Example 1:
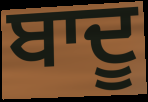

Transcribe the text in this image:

ਬਾਦੂ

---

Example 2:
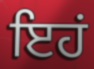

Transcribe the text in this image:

ਇਹਂ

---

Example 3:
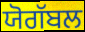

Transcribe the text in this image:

ਯੋਗੱਬਲ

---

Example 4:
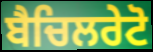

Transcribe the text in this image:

ਬੈਚਿਲਰੇਟੋ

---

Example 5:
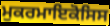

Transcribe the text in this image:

ਮੁਕਰਮਾਇਕੋਸਿਸ